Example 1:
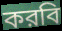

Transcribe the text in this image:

করবি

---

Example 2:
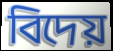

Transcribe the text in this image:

বিদেয়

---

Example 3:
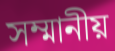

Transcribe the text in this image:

সম্মানীয়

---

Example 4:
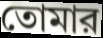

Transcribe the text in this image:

তোমার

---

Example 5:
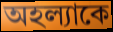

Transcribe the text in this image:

অহল্যাকে